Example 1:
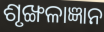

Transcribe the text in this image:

ଶୃଙ୍ଖଳାଜ୍ଞାନ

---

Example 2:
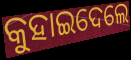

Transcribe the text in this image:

କୁହାଇଦେଲେ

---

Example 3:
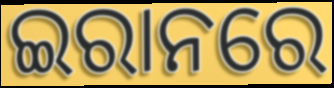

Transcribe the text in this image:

ଇରାନରେ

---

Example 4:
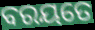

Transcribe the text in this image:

ବରୟତେ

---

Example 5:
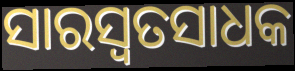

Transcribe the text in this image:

ସାରସ୍ଵତସାଧକ